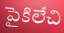
పైకిలేచి